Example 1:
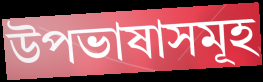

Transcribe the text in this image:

উপভাষাসমূহ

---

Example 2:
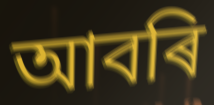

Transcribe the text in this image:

আবৰি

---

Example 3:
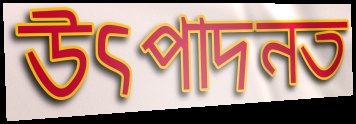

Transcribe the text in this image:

উৎপাদনত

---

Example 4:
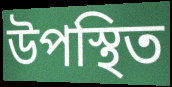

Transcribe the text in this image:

উপস্থিত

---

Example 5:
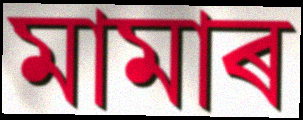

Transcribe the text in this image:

মামাৰ